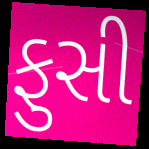
ફુસી